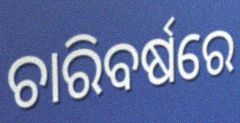
ଚାରିବର୍ଷରେ